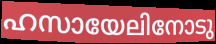
ഹസായേലിനോടു